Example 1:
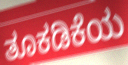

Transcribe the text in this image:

ತೂಕಡಿಕೆಯ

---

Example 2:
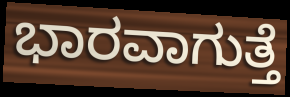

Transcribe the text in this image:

ಭಾರವಾಗುತ್ತೆ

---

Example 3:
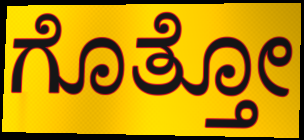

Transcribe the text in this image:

ಗೊತ್ತೋ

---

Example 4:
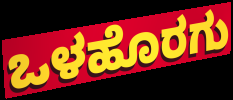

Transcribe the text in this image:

ಒಳಹೊರಗು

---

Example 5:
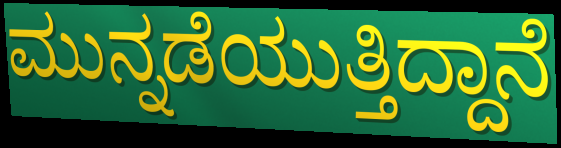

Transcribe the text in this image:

ಮುನ್ನಡೆಯುತ್ತಿದ್ದಾನೆ